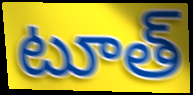
టూత్